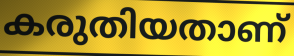
കരുതിയതാണ്